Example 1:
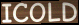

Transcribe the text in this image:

ICOLD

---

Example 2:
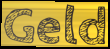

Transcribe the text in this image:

Geld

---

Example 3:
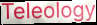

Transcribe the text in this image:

Teleology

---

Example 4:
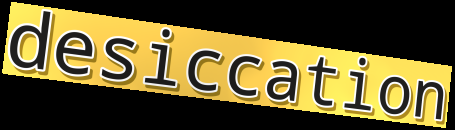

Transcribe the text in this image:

desiccation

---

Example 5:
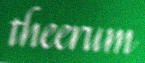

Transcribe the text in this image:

theerum